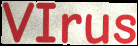
VIrus